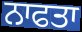
ਨਾਫਤਾ